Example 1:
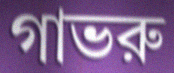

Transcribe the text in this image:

গাভরু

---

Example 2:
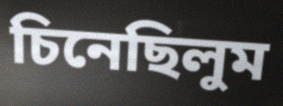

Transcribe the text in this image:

চিনেছিলুম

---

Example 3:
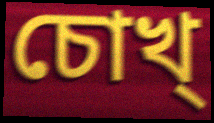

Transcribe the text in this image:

চোখ্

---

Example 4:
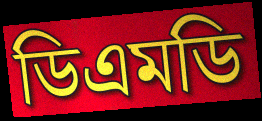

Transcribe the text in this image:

ডিএমডি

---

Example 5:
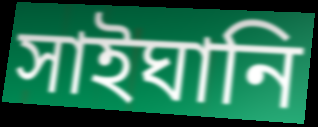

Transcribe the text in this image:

সাইঘানি